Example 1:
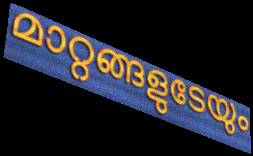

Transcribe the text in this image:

മാറ്റങ്ങളുടേയും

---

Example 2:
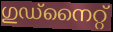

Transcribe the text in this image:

ഗുഡ്നൈറ്റ്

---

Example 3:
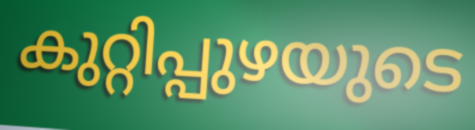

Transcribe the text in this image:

കുറ്റിപ്പുഴയുടെ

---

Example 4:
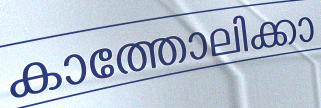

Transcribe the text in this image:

കാത്തോലിക്കാ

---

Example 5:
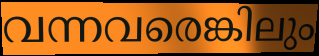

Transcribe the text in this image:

വന്നവരെങ്കിലും